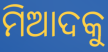
ମିଆଦକୁ